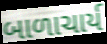
બાળાચાર્ય